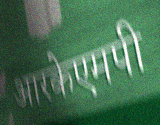
आरकेएमपी